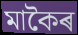
মাকৈৰ